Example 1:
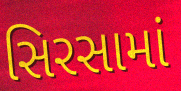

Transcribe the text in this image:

સિરસામાં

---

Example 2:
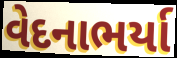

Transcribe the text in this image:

વેદનાભર્યા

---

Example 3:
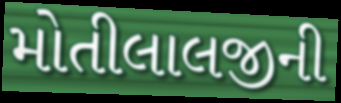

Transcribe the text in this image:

મોતીલાલજીની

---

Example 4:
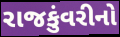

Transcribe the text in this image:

રાજકુંવરીનો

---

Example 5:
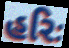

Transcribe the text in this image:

હરિઃ